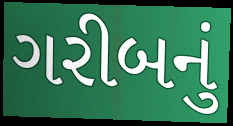
ગરીબનું